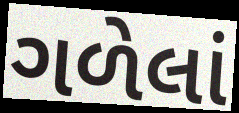
ગળેલાં